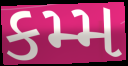
કમ્મ